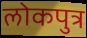
लोकपुत्र